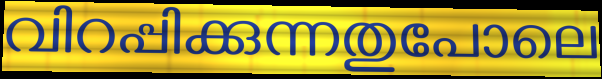
വിറപ്പിക്കുന്നതുപോലെ